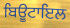
ਬਿਊਟਾਇਲ